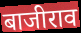
बाजीराव